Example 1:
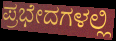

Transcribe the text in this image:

ಪ್ರಭೇದಗಳಲ್ಲಿ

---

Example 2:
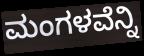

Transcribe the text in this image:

ಮಂಗಳವೆನ್ನಿ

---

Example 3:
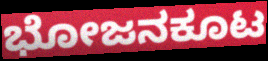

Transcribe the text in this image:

ಭೋಜನಕೂಟ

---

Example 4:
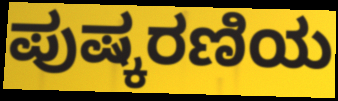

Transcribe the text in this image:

ಪುಷ್ಕರಣಿಯ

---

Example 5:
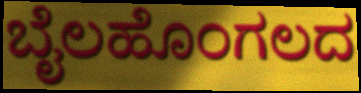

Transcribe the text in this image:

ಬೈಲಹೊಂಗಲದ